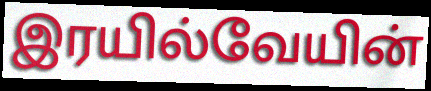
இரயில்வேயின்